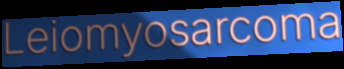
Leiomyosarcoma